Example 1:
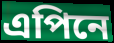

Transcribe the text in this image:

এপিনে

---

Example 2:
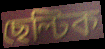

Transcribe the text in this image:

ছেল্টিক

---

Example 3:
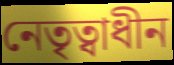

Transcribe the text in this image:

নেতৃত্বাধীন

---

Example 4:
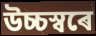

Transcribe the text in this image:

উচ্চস্বৰে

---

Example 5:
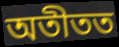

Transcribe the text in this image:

অতীতত